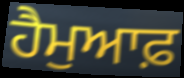
ਹੈਮੁਆਫ਼